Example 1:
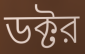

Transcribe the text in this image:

ডক্টর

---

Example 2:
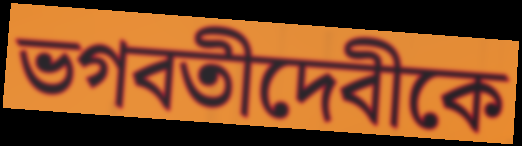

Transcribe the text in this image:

ভগবতীদেবীকে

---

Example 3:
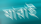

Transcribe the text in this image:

যারাই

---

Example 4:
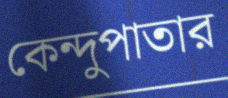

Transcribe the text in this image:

কেন্দুপাতার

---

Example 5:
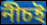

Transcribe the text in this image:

নীচই